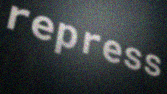
repress